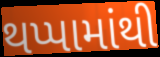
થપ્પામાંથી